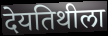
देयतिथीला